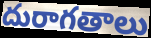
దురాగతాలు